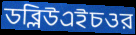
ডব্লিউএইচওর